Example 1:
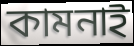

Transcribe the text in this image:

কামনাই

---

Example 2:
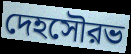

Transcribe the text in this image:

দেহসৌরভ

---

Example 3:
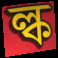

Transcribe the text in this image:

ল্ক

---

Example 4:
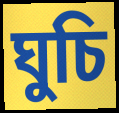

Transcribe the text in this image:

ঘুচি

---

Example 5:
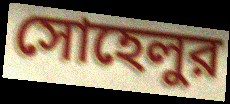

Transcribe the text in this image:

সোহেলুর